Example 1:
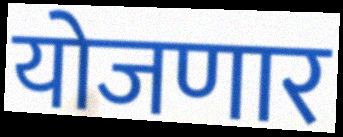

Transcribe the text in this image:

योजणार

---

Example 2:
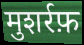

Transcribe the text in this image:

मुशर्रफ़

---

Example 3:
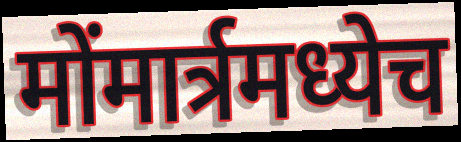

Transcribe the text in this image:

मोंमार्त्रमध्येच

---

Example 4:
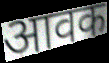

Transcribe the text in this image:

आवक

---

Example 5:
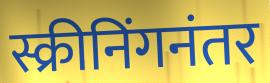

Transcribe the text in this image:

स्क्रीनिंगनंतर